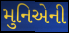
મુનિએની